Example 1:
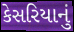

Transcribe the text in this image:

કેસરિયાનું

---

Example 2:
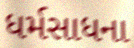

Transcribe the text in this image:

ધર્મસાધના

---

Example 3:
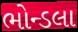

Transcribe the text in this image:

ભોન્ડલા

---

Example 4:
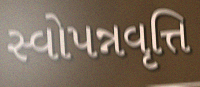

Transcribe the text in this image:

સ્વોપન્નવૃત્તિ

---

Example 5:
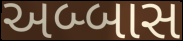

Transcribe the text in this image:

અબ્બાસ